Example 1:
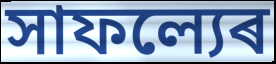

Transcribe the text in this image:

সাফল্যেৰ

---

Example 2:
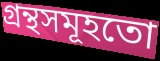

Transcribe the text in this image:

গ্ৰন্থসমূহতো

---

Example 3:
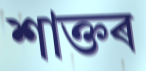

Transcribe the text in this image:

শাক্তৰ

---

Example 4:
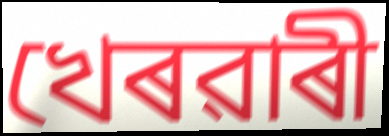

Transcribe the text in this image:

খেৰৱাৰী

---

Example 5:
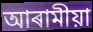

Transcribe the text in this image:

আৰামীয়া